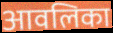
आवलिका